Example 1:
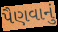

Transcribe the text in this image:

પૈણવાનું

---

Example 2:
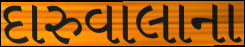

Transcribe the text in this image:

દારુવાલાના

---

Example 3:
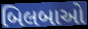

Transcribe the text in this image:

બિલબાઓ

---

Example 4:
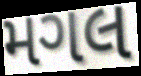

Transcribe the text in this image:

મગલ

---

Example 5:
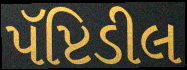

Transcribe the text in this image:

પૅપ્ટિડીલ